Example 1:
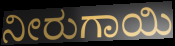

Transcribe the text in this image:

ನೀರುಗಾಯಿ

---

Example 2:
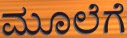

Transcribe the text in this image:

ಮೂಲೆಗೆ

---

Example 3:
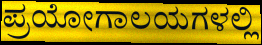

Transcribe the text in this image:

ಪ್ರಯೋಗಾಲಯಗಳಲ್ಲಿ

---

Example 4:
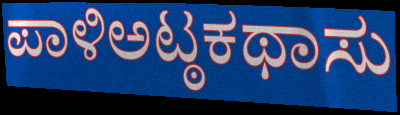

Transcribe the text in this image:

ಪಾಳಿಅಟ್ಠಕಥಾಸು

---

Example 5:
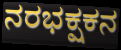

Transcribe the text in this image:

ನರಭಕ್ಷಕನ